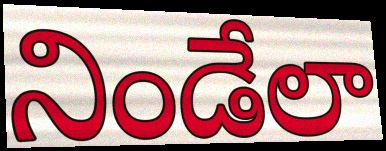
నిండేలా